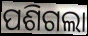
ପଶିଗଲା